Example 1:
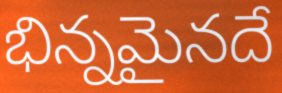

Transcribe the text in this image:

భిన్నమైనదే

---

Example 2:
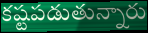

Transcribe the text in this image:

కష్టపడుతున్నారు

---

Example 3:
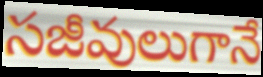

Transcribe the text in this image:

సజీవులుగానే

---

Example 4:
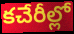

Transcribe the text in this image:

కచేరీల్లో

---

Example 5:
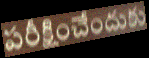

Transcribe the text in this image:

పరీక్షించేందుకు